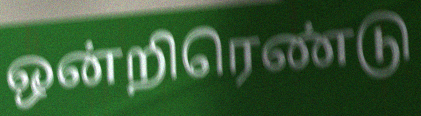
ஒன்றிரெண்டு